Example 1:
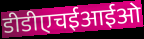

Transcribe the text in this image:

डीडीएचईआईओ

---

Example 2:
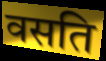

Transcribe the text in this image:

वसति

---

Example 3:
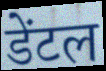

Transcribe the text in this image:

डेंटल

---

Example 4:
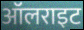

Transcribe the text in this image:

ऑलराइट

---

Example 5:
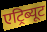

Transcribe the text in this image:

एट्रिब्यूट